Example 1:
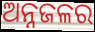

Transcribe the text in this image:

ଅନ୍ନଜଳର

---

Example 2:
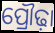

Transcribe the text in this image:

ପ୍ରୌଢ଼ା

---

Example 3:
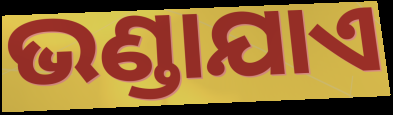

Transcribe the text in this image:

ଭଣ୍ଡାଯାଏ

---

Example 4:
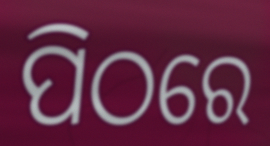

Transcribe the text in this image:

ପିଠରେ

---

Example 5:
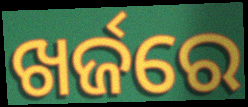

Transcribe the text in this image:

ଖର୍ଜରେ